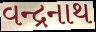
વન્દ્રનાથ